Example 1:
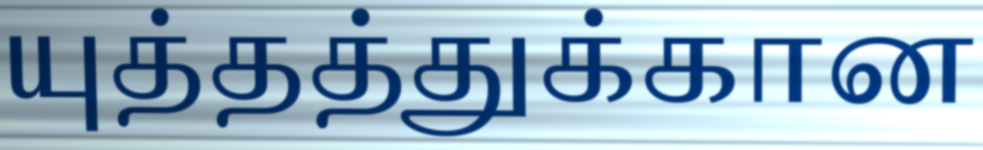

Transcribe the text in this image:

யுத்தத்துக்கான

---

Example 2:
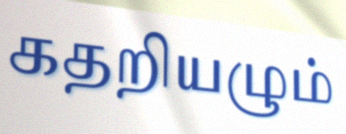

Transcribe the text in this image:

கதறியழும்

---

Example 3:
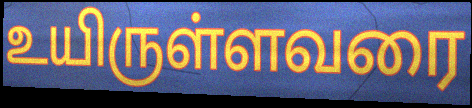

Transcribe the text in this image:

உயிருள்ளவரை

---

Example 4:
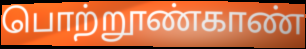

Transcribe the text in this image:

பொற்றூண்காண்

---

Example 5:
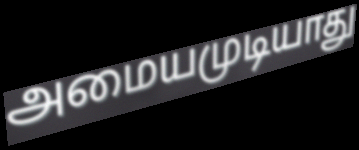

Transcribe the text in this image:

அமையமுடியாது